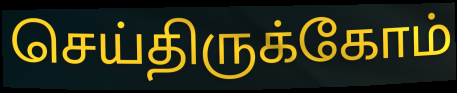
செய்திருக்கோம்